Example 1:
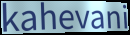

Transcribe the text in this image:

kahevani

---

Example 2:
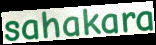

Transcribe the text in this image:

sahakara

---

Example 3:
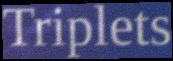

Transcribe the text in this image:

Triplets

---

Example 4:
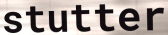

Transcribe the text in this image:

stutter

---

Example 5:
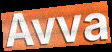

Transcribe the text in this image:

Avva